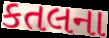
કતલના